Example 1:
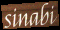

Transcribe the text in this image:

sinabi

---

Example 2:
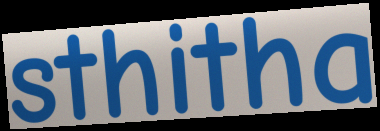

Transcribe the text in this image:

sthitha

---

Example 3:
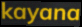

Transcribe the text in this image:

kayana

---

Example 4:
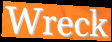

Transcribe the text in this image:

Wreck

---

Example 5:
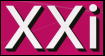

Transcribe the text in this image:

XXi